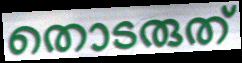
തൊടരുത്